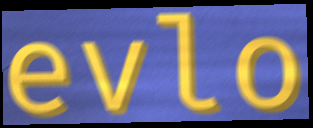
evlo